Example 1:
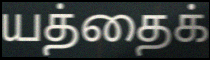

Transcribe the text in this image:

யத்தைக்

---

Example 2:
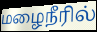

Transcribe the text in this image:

மழைநீரில்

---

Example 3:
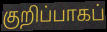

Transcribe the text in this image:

குறிப்பாகப்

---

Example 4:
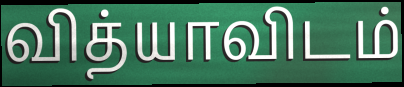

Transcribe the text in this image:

வித்யாவிடம்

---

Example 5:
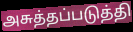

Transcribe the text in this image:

அசுத்தப்படுத்தி